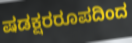
ಷಡಕ್ಷರರೂಪದಿಂದ